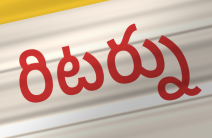
రిటర్ను